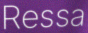
Ressa